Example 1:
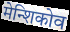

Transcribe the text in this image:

मेन्शिकोव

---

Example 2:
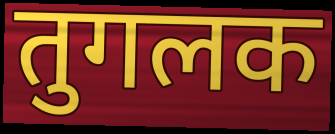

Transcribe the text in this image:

तुगलक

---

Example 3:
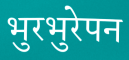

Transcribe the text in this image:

भुरभुरेपन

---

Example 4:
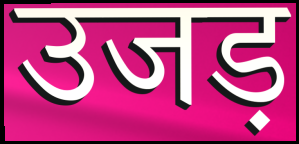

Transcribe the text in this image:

उजड़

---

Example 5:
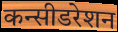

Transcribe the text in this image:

कन्सीडरेशन